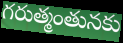
గరుత్మంతునకు